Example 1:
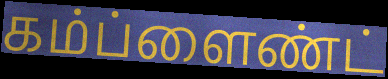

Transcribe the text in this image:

கம்ப்ளைண்ட்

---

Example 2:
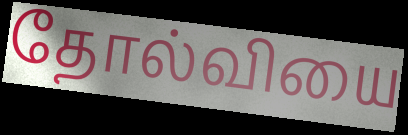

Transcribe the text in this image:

தோல்வியை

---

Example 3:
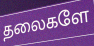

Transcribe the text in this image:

தலைகளே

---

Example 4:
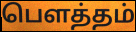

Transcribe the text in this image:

பௌத்தம்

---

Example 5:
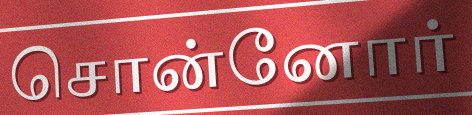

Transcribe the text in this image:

சொன்னோர்